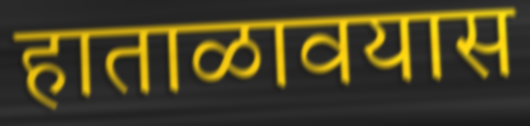
हाताळावयास